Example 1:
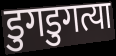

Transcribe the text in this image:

डुगडुगत्या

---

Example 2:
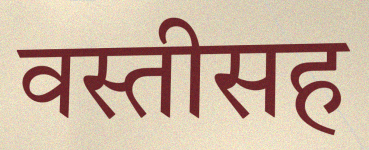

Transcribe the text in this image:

वस्तीसह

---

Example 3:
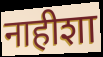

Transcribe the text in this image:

नाहीशा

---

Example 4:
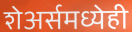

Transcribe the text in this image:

शेअर्समध्येही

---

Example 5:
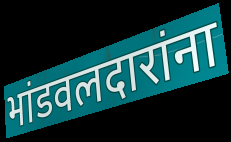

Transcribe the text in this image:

भांडवलदारांना